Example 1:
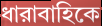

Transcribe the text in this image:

ধারাবাহিকে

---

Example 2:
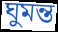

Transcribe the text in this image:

ঘুমন্ত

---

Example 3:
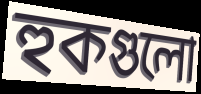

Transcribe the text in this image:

হুকগুলো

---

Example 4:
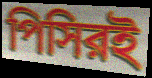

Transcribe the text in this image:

পিসিরই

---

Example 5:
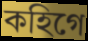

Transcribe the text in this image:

কহিগে